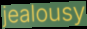
jealousy